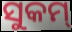
ସୁକମ୍